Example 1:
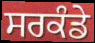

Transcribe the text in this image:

ਸਰਕੰਡੇ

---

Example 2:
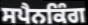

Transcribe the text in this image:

ਸਪੈਨਕਿੰਗ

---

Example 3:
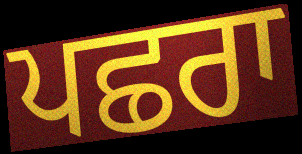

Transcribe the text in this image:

ਪਛਰਾ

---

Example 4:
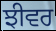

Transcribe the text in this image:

ਝੀਵਰ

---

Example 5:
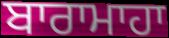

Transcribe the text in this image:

ਬਾਰਾਮਾਹਾ